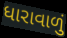
ધારાવાળું